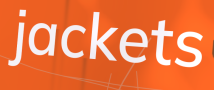
jackets